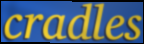
cradles